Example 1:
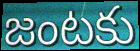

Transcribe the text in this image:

జంటకు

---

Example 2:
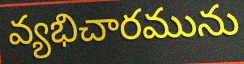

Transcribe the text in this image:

వ్యభిచారమును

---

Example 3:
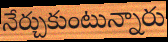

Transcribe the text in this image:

నేర్చుకుంటున్నారు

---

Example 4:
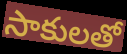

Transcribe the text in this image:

సాకులతో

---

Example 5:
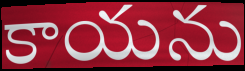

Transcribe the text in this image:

కాయను